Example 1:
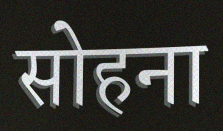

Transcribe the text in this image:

सोहना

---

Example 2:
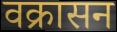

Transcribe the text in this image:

वक्रासन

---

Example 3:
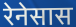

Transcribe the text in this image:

रेनेसास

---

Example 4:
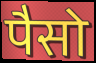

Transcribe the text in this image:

पैसो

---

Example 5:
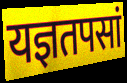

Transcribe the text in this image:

यज्ञतपसां